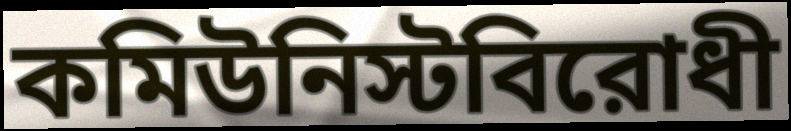
কমিউনিস্টবিরোধী